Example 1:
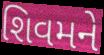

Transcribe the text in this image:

શિવમને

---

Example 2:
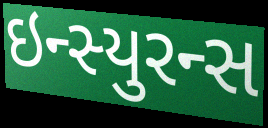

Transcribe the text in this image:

ઇન્સ્યુરન્સ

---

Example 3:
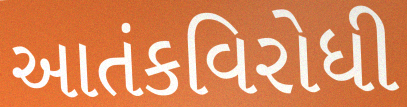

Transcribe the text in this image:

આતંકવિરોધી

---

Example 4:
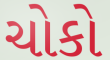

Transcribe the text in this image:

ચોકો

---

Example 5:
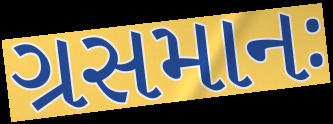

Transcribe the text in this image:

ગ્રસમાનઃ